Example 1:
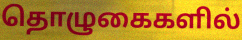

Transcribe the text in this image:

தொழுகைகளில்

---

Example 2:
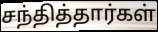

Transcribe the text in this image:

சந்தித்தார்கள்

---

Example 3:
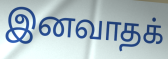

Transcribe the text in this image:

இனவாதக்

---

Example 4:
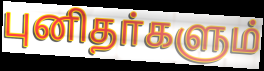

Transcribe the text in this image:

புனிதர்களும்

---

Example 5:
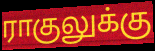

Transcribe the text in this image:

ராகுலுக்கு